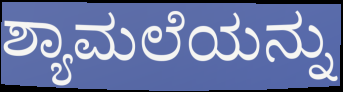
ಶ್ಯಾಮಲೆಯನ್ನು